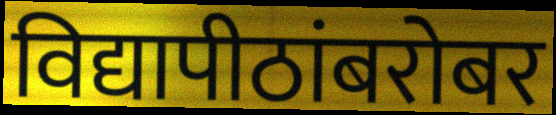
विद्यापीठांबरोबर